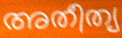
അതീത്യ